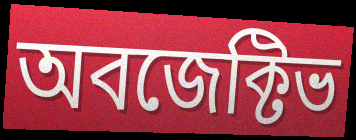
অবজেক্টিভ